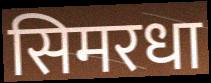
सिमरधा